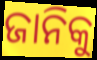
ଜାନିକୁ